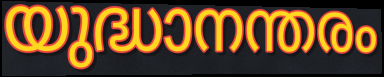
യുദ്ധാനന്തരം